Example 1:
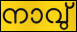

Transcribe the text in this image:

നാവു്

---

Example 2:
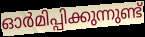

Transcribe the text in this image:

ഓർമിപ്പിക്കുന്നുണ്ട്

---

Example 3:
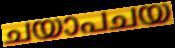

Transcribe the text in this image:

ചയാപചയ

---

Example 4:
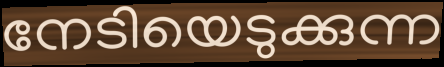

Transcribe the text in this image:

നേടിയെടുക്കുന്ന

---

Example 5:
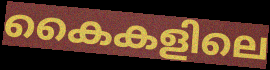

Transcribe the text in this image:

കൈകളിലെ